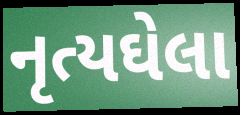
નૃત્યઘેલા